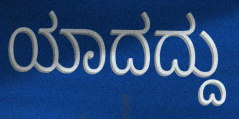
ಯಾದದ್ದು